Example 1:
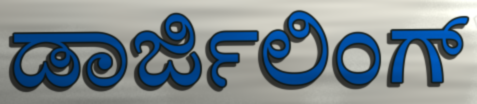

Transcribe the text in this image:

ಡಾರ್ಜಿಲಿಂಗ್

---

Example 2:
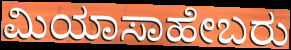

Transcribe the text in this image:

ಮಿಯಾಸಾಹೇಬರು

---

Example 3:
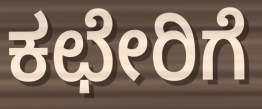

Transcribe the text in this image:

ಕಛೇರಿಗೆ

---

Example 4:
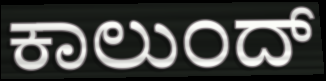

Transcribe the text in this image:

ಕಾಲುಂದ್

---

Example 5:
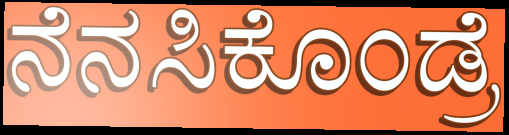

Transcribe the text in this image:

ನೆನಸಿಕೊಂಡ್ರೆ